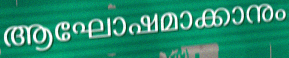
ആഘോഷമാക്കാനും